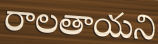
రాలతాయని